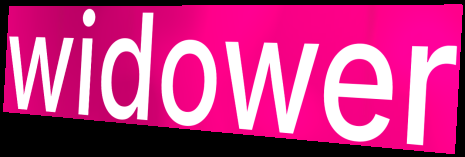
widower